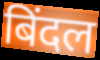
बिंदल